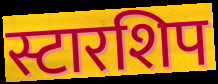
स्टारशिप